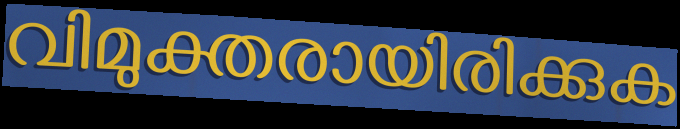
വിമുക്തരായിരിക്കുക